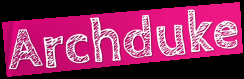
Archduke